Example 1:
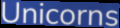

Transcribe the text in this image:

Unicorns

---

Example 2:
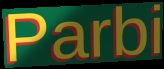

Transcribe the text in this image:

Parbi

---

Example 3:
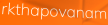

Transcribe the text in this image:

rkthapovanam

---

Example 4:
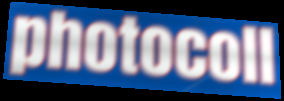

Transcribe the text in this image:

photocoll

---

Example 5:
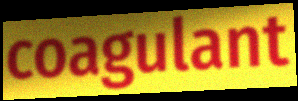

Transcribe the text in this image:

coagulant